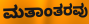
ಮತಾಂತರವು